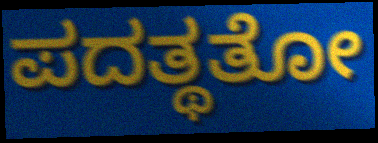
ಪದತ್ಥತೋ